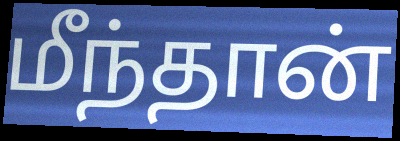
மீந்தான்